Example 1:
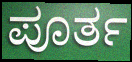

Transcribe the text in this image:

ಪೂರ್ತ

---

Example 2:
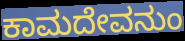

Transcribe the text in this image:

ಕಾಮದೇವನುಂ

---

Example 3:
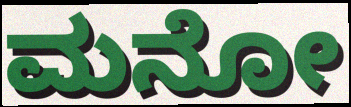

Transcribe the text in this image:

ಮನೋ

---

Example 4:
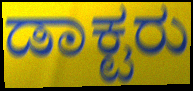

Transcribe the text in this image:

ಡಾಕ್ಟರು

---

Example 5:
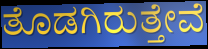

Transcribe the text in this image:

ತೊಡಗಿರುತ್ತೇವೆ